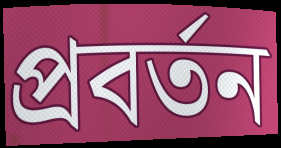
প্রবর্তন